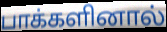
பாக்களினால்